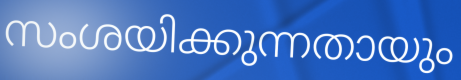
സംശയിക്കുന്നതായും